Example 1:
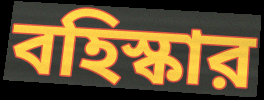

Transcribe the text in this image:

বহিস্কার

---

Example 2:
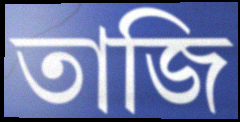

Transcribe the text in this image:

তাজি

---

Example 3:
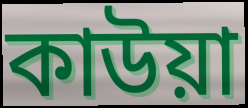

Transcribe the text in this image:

কাউয়া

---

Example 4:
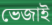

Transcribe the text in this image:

ভেজাই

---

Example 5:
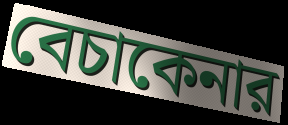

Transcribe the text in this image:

বেচাকেনার